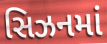
સિઝનમાં